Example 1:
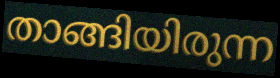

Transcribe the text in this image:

താങ്ങിയിരുന്ന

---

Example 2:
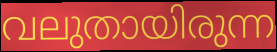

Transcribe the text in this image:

വലുതായിരുന്ന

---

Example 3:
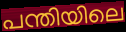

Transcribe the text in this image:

പന്തിയിലെ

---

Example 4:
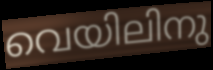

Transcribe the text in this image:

വെയിലിനു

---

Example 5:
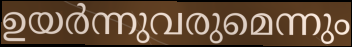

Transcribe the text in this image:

ഉയർന്നുവരുമെന്നും